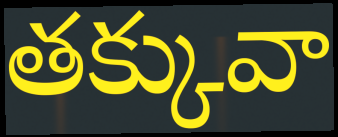
తక్కువా